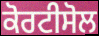
ਕੋਰਟੀਸੋਲ